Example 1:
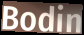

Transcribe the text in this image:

Bodin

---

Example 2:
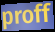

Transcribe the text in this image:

proff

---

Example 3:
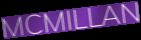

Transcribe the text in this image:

MCMILLAN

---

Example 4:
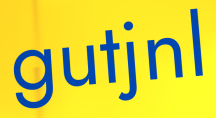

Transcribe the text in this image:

gutjnl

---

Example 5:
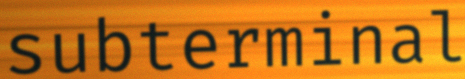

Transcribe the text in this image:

subterminal